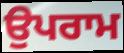
ਉਪਰਾਮ